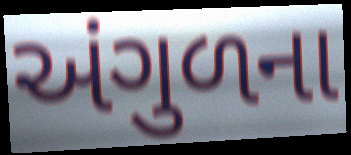
અંગુળના